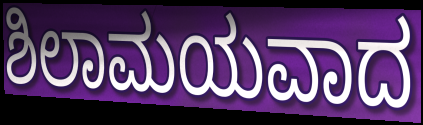
ಶಿಲಾಮಯವಾದ